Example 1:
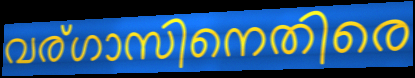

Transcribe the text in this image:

വര്ഗാസിനെതിരെ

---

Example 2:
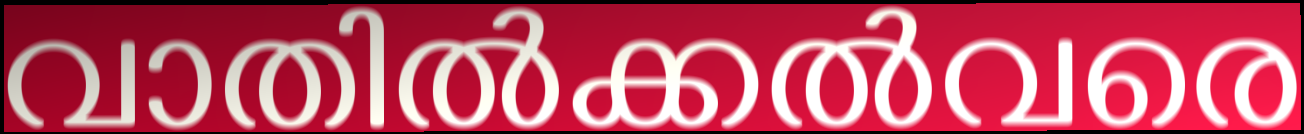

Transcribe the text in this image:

വാതിൽക്കൽവരെ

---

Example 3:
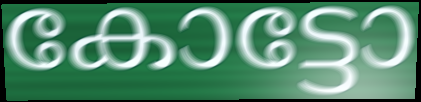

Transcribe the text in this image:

കോട്ടോ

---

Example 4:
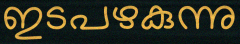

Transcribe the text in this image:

ഇടപഴകുന്നു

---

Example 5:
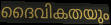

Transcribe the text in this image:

ദൈവികതയും